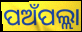
ପଅଁପଲ୍ଲା